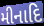
મીનાદિ